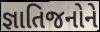
જ્ઞાતિજનોને